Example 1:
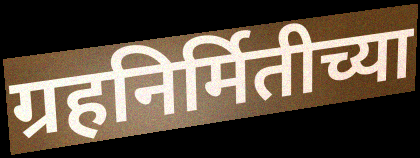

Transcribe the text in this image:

ग्रहनिर्मितीच्या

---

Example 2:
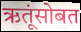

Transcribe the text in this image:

ऋतूंसोबत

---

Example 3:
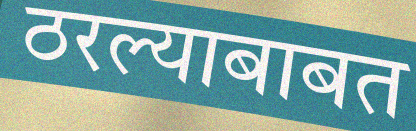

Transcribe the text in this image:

ठरल्याबाबत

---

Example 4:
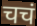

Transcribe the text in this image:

चचं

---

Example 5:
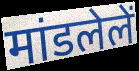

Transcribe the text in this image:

मांडलेलें